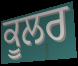
ਕੂਲਰ